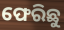
ଫେରିଛୁ